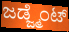
ಜಡ್ಜ್ಮೆಂಟ್